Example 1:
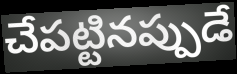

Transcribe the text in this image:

చేపట్టినప్పుడే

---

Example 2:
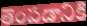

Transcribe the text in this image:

తెంపడానికి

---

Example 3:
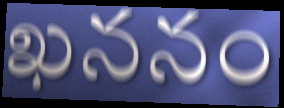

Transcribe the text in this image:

ఖననం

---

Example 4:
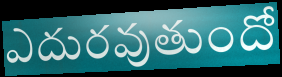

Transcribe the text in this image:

ఎదురవుతుందో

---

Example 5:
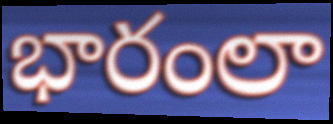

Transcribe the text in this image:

భారంలా